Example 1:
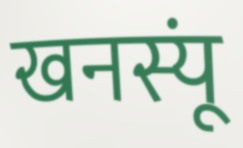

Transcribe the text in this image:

खनस्यूं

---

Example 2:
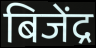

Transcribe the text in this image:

बिजेंद्र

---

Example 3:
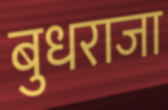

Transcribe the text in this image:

बुधराजा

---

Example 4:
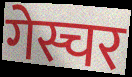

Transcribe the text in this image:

गेस्चर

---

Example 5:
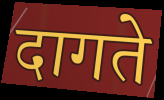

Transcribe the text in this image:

दागते